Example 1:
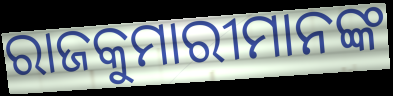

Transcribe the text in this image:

ରାଜକୁମାରୀମାନଙ୍କ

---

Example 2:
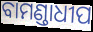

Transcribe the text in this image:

ବାମଣ୍ଡାଧୀପ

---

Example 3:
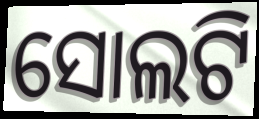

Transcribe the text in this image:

ସୋଲଟି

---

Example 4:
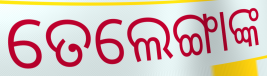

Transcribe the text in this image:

ତେଲେଙ୍ଗାଙ୍କ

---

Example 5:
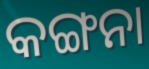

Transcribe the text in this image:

କଙ୍ଗନା